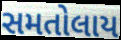
સમતોલાય